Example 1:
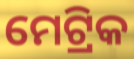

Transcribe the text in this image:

ମେଟ୍ରିକ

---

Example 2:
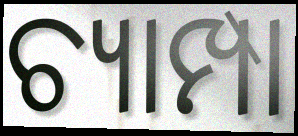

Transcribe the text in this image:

ଚ୍ୟାମ୍ପା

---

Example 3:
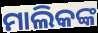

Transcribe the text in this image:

ମାଲିକଙ୍କ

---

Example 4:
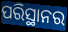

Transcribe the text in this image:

ପରିସ୍ଥାନର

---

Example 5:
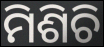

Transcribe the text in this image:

ମିଶିଚି